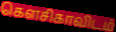
கௌசிகாவிடம்